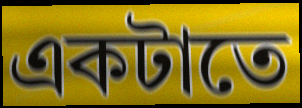
একটাতে